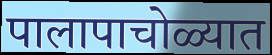
पालापाचोळ्यात